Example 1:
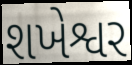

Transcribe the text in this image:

શખેશ્વર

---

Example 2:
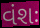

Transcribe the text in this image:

વંશઃ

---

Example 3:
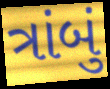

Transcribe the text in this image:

ત્રાંબું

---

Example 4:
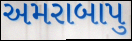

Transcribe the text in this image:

અમરાબાપુ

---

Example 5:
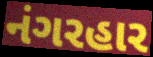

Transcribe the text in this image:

નંગરહાર